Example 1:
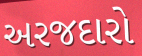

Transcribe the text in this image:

અરજદારો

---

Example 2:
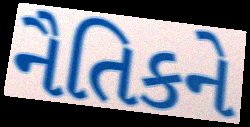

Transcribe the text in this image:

નૈતિકને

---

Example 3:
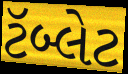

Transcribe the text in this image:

ટૅબ્લેટ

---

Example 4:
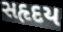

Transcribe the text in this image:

સહૃદય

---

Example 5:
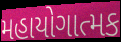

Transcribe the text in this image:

મહાયોગાત્મક